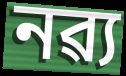
নৱ্য